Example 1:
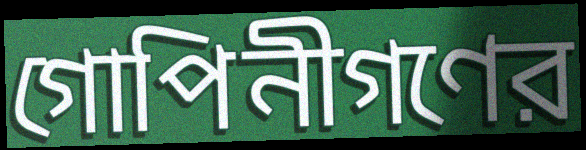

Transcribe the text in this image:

গোপিনীগণের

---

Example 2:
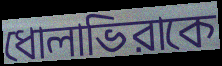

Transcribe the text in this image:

ধোলাভিরাকে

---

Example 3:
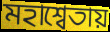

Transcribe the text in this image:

মহাশ্বেতায়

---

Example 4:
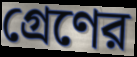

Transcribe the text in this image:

গ্রেণের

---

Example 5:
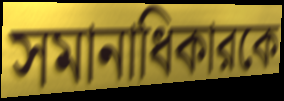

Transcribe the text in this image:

সমানাধিকারকে